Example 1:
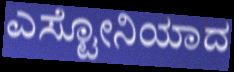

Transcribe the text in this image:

ಎಸ್ಟೋನಿಯಾದ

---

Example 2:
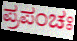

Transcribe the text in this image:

ಪ್ರಪಂಚಃ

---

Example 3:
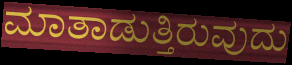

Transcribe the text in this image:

ಮಾತಾಡುತ್ತಿರುವುದು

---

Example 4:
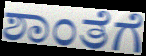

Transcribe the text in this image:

ಶಾಂತೆಗೆ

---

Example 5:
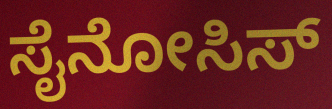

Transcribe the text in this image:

ಸೈನೋಸಿಸ್